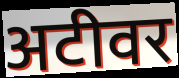
अटीवर